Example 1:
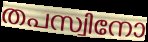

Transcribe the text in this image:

തപസ്വിനോ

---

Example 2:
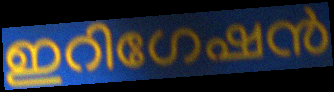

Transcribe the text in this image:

ഇറിഗേഷൻ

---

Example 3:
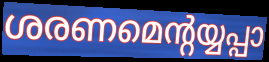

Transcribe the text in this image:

ശരണമെന്റയ്യപ്പാ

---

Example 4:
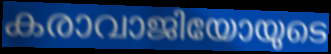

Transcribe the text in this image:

കരാവാജിയോയുടെ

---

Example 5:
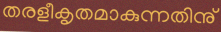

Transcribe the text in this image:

തരളീകൃതമാകുന്നതിനു്